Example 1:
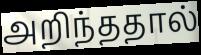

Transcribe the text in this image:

அறிந்ததால்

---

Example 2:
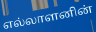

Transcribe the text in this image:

எல்லாளனின்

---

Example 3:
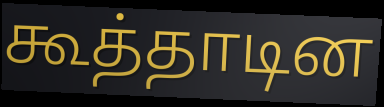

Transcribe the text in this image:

கூத்தாடின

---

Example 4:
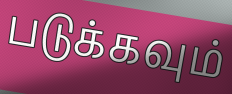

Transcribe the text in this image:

படுக்கவும்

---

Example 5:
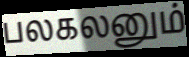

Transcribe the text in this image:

பலகலனும்